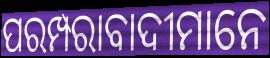
ପରମ୍ପରାବାଦୀମାନେ